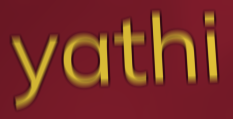
yathi